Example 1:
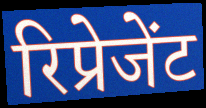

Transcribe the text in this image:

रिप्रेजेंट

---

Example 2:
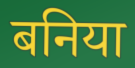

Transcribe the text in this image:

बनिया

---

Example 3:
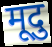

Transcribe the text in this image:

मूदु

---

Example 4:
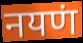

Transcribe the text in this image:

नयणं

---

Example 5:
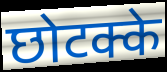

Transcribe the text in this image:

छोटक्के